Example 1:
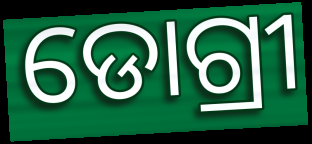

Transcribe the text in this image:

ଡୋଗ୍ରୀ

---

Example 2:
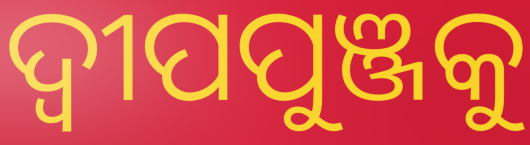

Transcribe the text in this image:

ଦ୍ଵୀପପୁଞ୍ଜକୁ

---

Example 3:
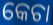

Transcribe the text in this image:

କେଚା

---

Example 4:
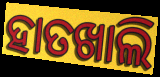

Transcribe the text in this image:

ହାତଖାଲି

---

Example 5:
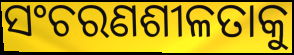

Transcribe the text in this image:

ସଂଚରଣଶୀଳତାକୁ